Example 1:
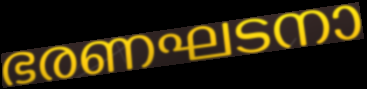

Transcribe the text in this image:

ഭരണഘടനാ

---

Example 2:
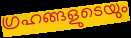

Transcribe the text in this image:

ഗ്രഹങ്ങളുടെയും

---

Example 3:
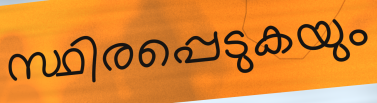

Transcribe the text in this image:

സ്ഥിരപ്പെടുകയും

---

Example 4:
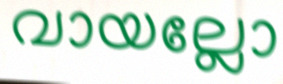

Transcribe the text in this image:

വായല്ലോ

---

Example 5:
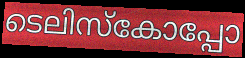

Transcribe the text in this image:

ടെലിസ്കോപ്പോ